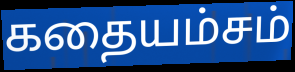
கதையம்சம்